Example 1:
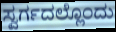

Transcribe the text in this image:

ಸ್ವರ್ಗದಲ್ಲೊಂದು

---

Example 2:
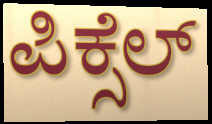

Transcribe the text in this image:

ಪಿಕ್ಸೆಲ್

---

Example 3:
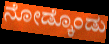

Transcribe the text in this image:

ನೋಡ್ಕೊಂಡು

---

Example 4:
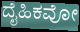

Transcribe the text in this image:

ದೈಹಿಕವೋ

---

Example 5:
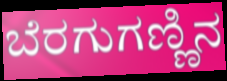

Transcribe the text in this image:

ಬೆರಗುಗಣ್ಣಿನ